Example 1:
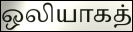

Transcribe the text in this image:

ஒலியாகத்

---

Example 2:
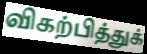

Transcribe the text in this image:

விகற்பித்துக்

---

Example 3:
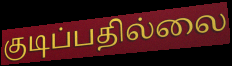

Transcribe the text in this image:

குடிப்பதில்லை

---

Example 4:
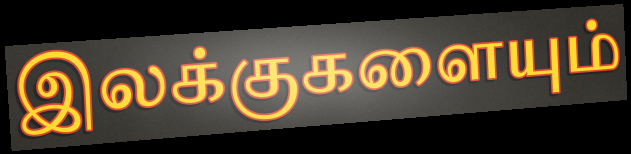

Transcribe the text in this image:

இலக்குகளையும்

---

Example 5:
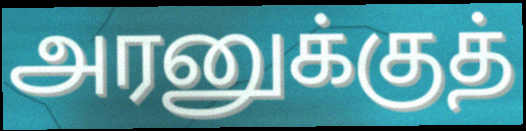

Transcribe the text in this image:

அரனுக்குத்